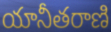
యానీతరాణి